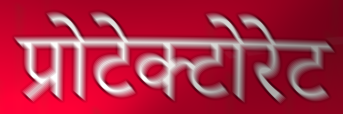
प्रोटेक्टोरेट